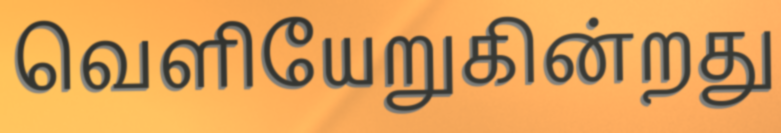
வெளியேறுகின்றது